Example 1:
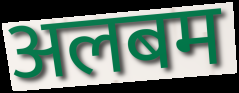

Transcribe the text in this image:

अलबम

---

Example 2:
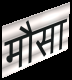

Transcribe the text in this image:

मौसा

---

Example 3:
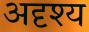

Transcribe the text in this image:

अदृश्य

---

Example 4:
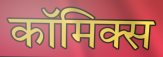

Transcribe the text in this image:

कॉमिक्स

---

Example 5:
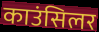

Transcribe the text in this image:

काउंसिलर